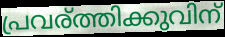
പ്രവര്ത്തിക്കുവിന്